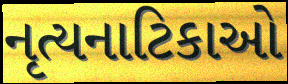
નૃત્યનાટિકાઓ